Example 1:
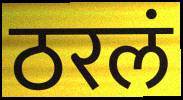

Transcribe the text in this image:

ठरलं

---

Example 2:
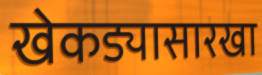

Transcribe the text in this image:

खेकड्यासारखा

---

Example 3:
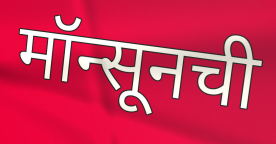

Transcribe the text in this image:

मॉन्सूनची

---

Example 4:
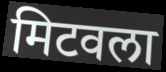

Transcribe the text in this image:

मिटवला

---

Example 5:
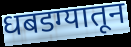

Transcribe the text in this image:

धबडग्यातून